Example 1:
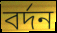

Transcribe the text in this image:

বর্দন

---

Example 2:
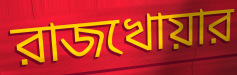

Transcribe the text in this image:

রাজখোয়ার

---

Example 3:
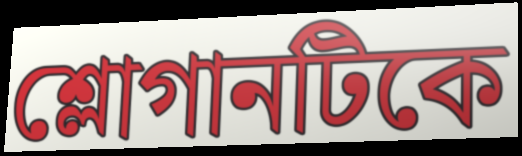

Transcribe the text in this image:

শ্লোগানটিকে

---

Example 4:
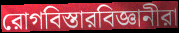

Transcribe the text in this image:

রোগবিস্তারবিজ্ঞানীরা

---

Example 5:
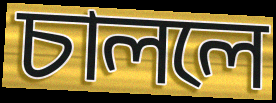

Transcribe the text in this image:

চাললে